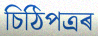
চিঠিপত্ৰৰ